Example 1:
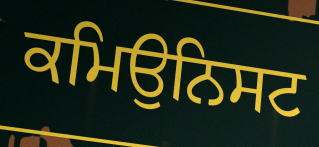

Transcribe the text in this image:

ਕਮਿਉਨਿਸਟ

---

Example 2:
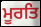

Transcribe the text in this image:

ਮੂਰਤਿ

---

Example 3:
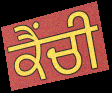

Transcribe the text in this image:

ਕੈਂਚੀ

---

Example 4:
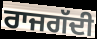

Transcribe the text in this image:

ਰਾਜਗੱਦੀ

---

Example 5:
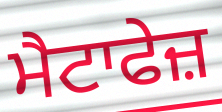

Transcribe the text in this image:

ਮੈਟਾਫੇਜ਼